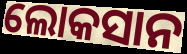
ଲୋକସାନ